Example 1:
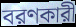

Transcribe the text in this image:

বরণকারী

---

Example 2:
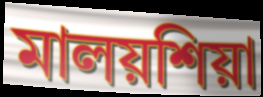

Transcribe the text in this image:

মালয়শিয়া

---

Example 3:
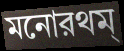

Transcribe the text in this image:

মনোরথম্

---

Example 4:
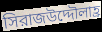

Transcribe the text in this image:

সিরাজউদ্দৌলাহ্র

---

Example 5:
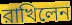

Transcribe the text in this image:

রাখিলেন